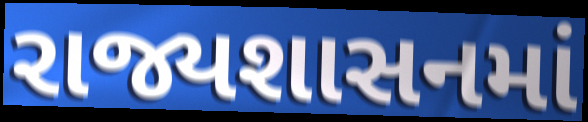
રાજ્યશાસનમાં